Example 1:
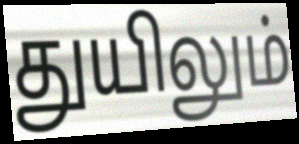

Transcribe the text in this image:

துயிலும்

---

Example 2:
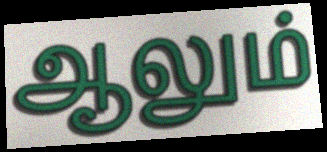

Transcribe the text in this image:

ஆலும்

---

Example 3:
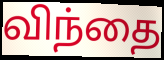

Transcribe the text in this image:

விந்தை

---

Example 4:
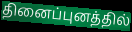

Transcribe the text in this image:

தினைப்புனத்தில்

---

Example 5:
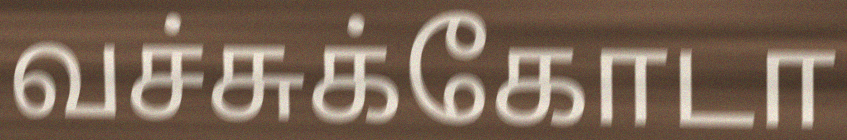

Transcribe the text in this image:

வச்சுக்கோடா